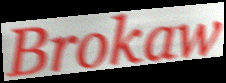
Brokaw